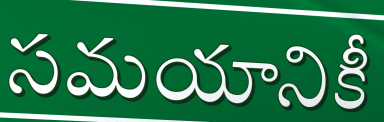
సమయానికీ